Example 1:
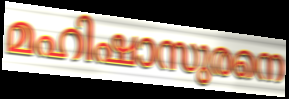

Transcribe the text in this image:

മഹിഷാസുരനെ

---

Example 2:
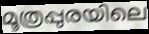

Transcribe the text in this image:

മൂത്രപ്പുരയിലെ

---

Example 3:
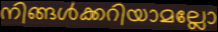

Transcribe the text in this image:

നിങ്ങൾക്കറിയാമല്ലോ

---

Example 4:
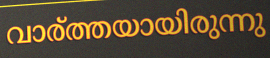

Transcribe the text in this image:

വാര്ത്തയായിരുന്നു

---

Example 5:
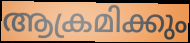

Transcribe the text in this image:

ആക്രമിക്കും